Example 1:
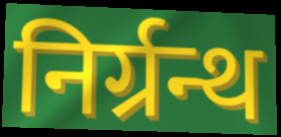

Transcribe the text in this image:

निर्ग्रन्थ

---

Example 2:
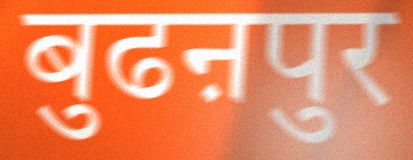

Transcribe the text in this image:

बुढऩपुर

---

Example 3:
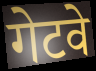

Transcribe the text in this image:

गेटवे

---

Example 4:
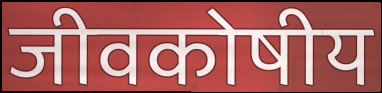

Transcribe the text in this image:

जीवकोषीय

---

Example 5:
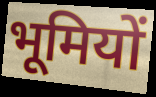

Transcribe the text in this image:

भूमियों